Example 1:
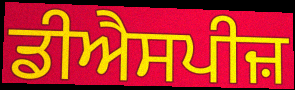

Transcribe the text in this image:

ਡੀਐਸਪੀਜ਼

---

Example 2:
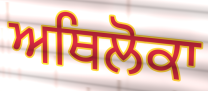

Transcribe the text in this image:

ਅਥਿਲੋਕਾ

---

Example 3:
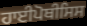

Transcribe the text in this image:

ਹਾਈਪੋਥੀਸਿਸ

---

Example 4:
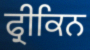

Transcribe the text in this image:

ਫ੍ਰੀਕਿਨ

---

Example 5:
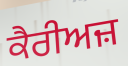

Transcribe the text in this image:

ਕੈਰੀਅਜ਼